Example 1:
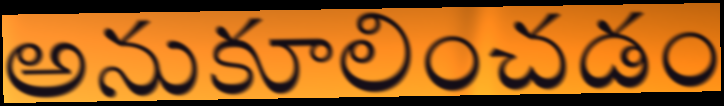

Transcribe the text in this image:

అనుకూలించడం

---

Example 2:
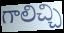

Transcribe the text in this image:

గాలిచ్చి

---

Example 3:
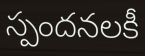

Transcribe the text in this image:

స్పందనలకీ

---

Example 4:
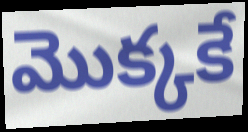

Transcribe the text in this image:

మొక్కకే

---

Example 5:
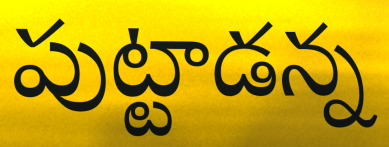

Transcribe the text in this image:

పుట్టాడన్న